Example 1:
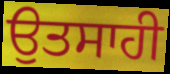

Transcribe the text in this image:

ਉਤਸਾਹੀ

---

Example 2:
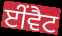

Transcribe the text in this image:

ਈਂਵੈਟ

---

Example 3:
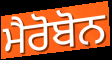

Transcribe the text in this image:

ਮੈਰੋਬੋਨ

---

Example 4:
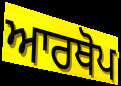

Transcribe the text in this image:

ਆਰਥੋਪ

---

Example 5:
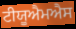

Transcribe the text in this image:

ਟੀਯੂਐਮਐਸ